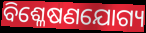
ବିଶ୍ଳେଷଣଯୋଗ୍ୟ